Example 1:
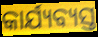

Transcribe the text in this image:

କାର୍ଯ୍ୟବ୍ୟସ୍ତ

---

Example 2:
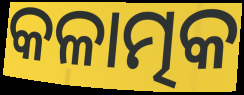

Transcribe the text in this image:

କଳାତ୍ମକ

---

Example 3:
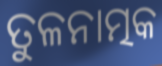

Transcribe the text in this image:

ତୁଳନାତ୍ମକ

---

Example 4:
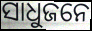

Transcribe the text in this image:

ସାଧୁଜନେ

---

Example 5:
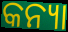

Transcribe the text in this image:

କନ୍ୟା